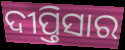
ଦୀପ୍ତିସାର